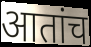
आतांच